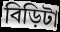
বিড়িটা